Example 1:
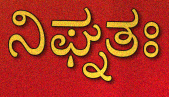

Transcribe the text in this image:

ನಿಘ್ನತಃ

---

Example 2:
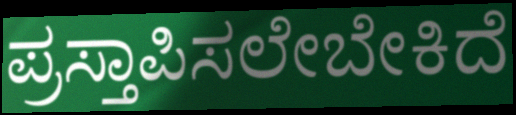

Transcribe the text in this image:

ಪ್ರಸ್ತಾಪಿಸಲೇಬೇಕಿದೆ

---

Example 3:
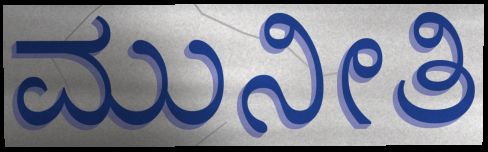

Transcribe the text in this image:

ಮುನೀತಿ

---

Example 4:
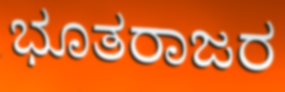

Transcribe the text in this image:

ಭೂತರಾಜರ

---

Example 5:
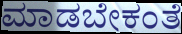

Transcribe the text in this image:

ಮಾಡಬೇಕಂತೆ